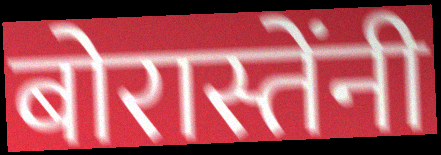
बोरास्तेंनी